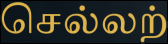
செல்லற்